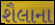
શૈલાના